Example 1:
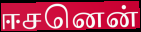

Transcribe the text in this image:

ஈசனென்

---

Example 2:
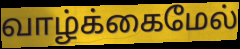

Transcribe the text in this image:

வாழ்க்கைமேல்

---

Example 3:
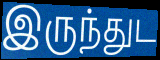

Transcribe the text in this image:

இருந்துட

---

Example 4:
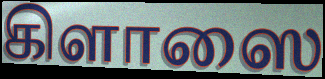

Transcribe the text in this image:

கிளாஸை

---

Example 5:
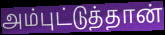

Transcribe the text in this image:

அம்புட்டுத்தான்